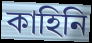
কাহিনি